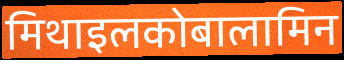
मिथाइलकोबालामिन